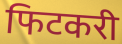
फिटकरी